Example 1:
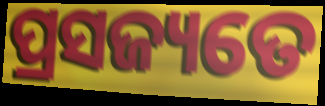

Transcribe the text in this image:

ପ୍ରସଜ୍ୟତେ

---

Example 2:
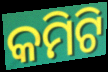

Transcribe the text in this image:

କମିଟି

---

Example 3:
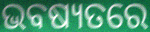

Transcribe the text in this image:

ଭବଷ୍ୟତରେ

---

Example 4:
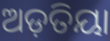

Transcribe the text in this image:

ଅଡ଼ତିୟା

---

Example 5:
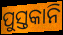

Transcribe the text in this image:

ପୁସ୍ତକାନି